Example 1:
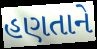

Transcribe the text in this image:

હણતાને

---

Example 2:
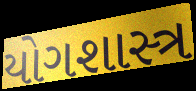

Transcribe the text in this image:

યોગશાસ્‍ત્ર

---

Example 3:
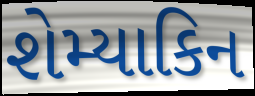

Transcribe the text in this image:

શેમ્યાકિન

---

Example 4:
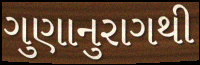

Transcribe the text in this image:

ગુણાનુરાગથી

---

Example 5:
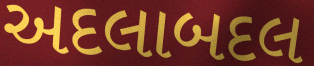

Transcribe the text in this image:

અદલાબદલ